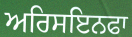
ਅਰਿਸਇਨਫਾ